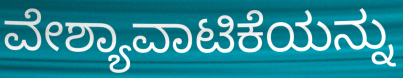
ವೇಶ್ಯಾವಾಟಿಕೆಯನ್ನು